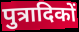
पुत्रादिकों